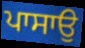
ਪਾਸਾਉ